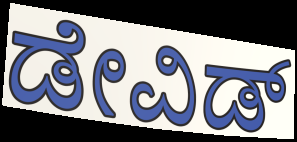
ಡೇವಿಡ್